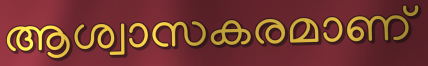
ആശ്വാസകരമാണ്